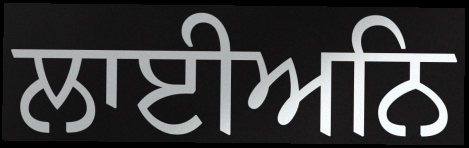
ਲਾਈਅਨਿ